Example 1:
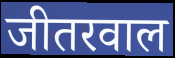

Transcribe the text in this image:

जीतरवाल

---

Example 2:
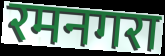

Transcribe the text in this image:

रमनगरा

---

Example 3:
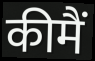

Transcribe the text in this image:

कीमैं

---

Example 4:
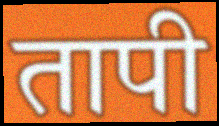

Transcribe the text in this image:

तापी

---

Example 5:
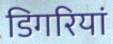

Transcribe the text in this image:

डिगरियां